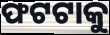
ଫଟଟାକୁ